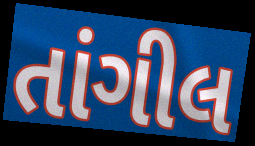
તાંગીલ